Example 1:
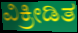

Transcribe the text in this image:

ವಿಕ್ರೀಡಿತ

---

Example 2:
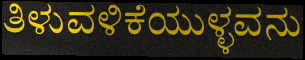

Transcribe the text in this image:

ತಿಳುವಳಿಕೆಯುಳ್ಳವನು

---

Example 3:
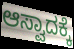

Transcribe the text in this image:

ಆಸ್ವಾದಕ್ಕೆ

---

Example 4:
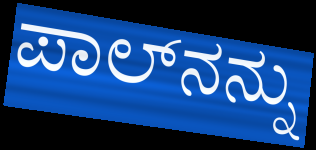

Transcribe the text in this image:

ಪಾಲ್‍ನನ್ನು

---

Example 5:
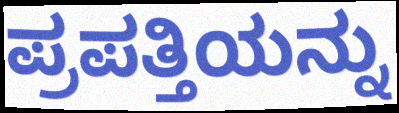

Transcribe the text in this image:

ಪ್ರಪತ್ತಿಯನ್ನು